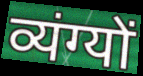
व्यंग्यों